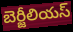
బెర్జీలియస్